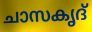
ചാസകൃദ്